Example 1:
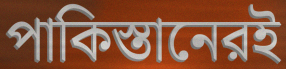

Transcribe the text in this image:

পাকিস্তানেরই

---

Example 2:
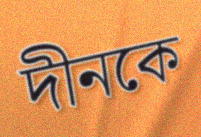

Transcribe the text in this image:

দীনকে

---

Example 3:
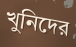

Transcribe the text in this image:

খুনিদের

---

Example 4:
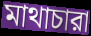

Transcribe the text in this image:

মাথাচারা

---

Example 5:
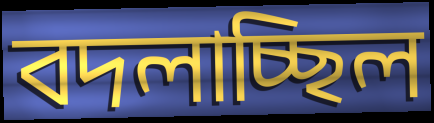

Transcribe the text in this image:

বদলাচ্ছিল